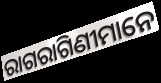
ରାଗରାଗିଣୀମାନେ